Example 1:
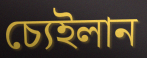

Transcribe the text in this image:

চ্যেইলান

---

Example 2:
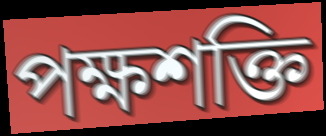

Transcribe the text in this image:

পক্ষশক্তি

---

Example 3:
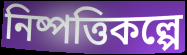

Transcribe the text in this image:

নিষ্পত্তিকল্পে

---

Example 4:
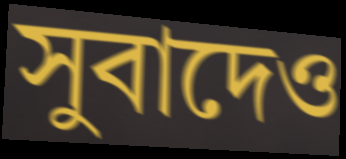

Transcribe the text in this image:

সুবাদেও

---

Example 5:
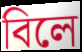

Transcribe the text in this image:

বিলে